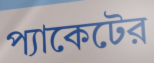
প্যাকেটের